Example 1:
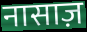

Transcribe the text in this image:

नासाज़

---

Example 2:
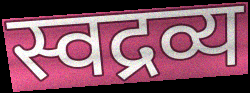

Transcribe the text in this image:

स्वद्रव्य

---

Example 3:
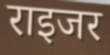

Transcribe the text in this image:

राइजर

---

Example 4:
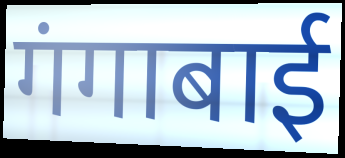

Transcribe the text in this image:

गंगाबाई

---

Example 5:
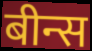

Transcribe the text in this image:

बीन्‍स